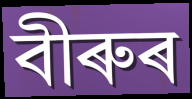
বীৰুৰ